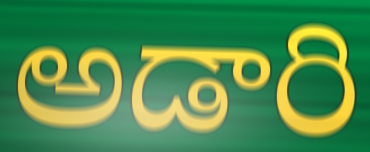
అడారి